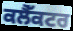
ਕਲੈੱਕਟਰ